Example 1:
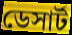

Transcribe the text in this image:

ডেসার্ট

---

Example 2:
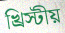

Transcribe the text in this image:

খ্রিস্টীয়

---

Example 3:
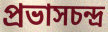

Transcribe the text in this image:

প্রভাসচন্দ্র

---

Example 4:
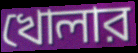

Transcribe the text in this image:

খোলার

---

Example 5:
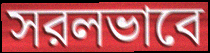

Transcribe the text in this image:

সরলভাবে